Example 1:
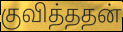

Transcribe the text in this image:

குவித்ததன்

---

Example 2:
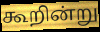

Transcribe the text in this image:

கூறின்று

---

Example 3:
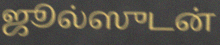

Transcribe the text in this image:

ஜூல்ஸுடன்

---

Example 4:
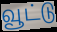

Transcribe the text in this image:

வூட்டு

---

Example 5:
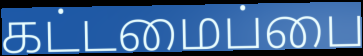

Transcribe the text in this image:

கட்டமைப்பை